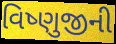
વિષ્ણુજીની